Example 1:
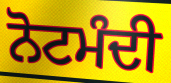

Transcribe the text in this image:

ਨੋਟਮੰਦੀ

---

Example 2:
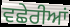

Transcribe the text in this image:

ਵਛੇਰੀਆਂ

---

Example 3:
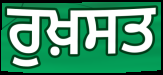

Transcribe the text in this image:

ਰੁਖ਼ਸਤ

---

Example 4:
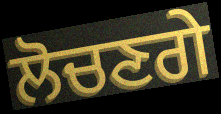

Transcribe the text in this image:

ਲੋਚਣਗੇ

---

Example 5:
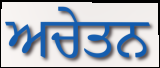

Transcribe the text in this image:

ਅਚੇਤਨ